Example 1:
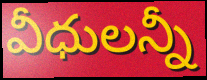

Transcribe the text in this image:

వీధులన్నీ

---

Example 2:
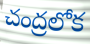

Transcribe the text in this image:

చంద్రలోక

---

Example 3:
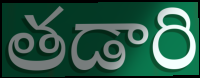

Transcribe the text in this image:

తడారి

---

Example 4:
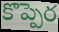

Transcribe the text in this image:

కొప్పెర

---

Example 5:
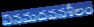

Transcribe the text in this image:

వినమదవనశీలం